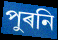
পুৰনি